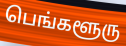
பெங்களூரு